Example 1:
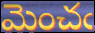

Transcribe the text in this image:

మెంచఁ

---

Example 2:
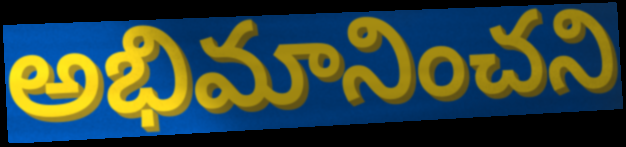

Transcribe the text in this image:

అభిమానించని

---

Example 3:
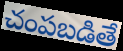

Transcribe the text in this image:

చంపబడితే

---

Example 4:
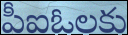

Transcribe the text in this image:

పీఐఓలకు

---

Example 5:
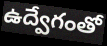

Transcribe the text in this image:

ఉద్వేగంతో